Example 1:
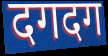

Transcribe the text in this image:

दगदग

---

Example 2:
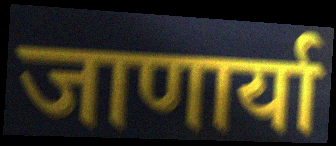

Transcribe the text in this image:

जाणार्या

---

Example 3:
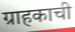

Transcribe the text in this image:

ग्राहकाची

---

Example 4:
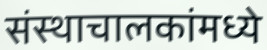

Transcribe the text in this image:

संस्थाचालकांमध्ये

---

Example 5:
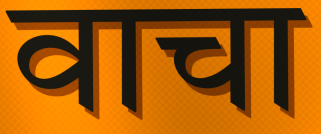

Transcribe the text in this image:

वाचा